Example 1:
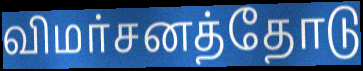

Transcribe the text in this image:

விமர்சனத்தோடு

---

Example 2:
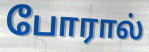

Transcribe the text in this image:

போரால்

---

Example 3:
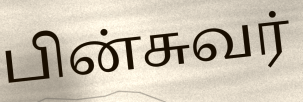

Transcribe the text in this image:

பின்சுவர்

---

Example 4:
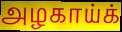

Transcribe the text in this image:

அழகாய்க்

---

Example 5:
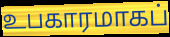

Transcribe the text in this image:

உபகாரமாகப்